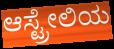
ಆಸ್ಟ್ರೇಲಿಯ